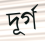
দূৰ্গ